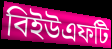
বিইউএফটি